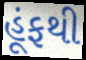
હૂંફથી